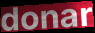
donar